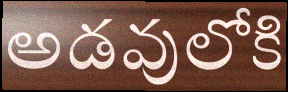
అడవులోకి